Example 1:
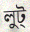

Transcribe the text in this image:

লুট্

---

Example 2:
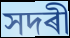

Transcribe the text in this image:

সদৰী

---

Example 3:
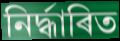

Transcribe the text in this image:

নিৰ্দ্ধাৰিত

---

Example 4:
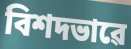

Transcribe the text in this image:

বিশদভাৱে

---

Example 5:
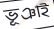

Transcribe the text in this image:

ভূঞাই